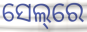
ସେଲ୍‌ରେ